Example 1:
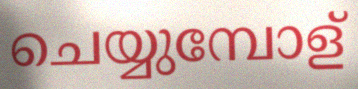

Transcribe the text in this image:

ചെയ്യുമ്പോള്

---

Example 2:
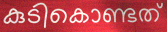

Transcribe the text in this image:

കുടികൊണ്ടത്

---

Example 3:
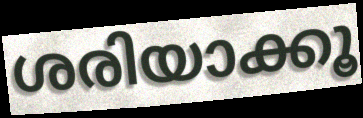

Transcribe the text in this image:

ശരിയാക്കൂ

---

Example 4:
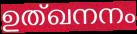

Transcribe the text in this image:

ഉത്ഖനനം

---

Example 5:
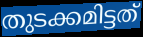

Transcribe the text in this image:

തുടക്കമിട്ടത്